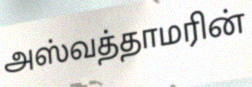
அஸ்வத்தாமரின்